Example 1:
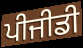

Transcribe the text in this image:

ਪੀਜੀਡੀ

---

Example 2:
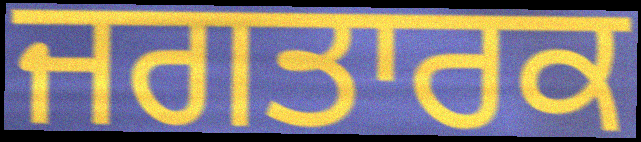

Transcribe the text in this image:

ਜਗਤਾਰਕ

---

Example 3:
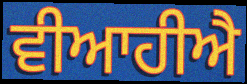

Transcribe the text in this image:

ਵੀਆਹੀਐ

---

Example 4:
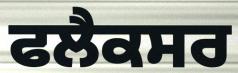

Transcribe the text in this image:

ਫਲੈਕਸਰ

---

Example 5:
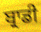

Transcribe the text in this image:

ਬ੍ਰਾਡੀ